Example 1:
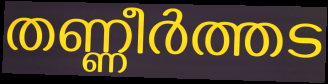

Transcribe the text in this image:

തണ്ണീർത്തട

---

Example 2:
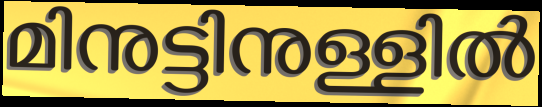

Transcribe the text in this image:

മിനുട്ടിനുള്ളിൽ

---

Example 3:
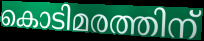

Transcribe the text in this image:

കൊടിമരത്തിന്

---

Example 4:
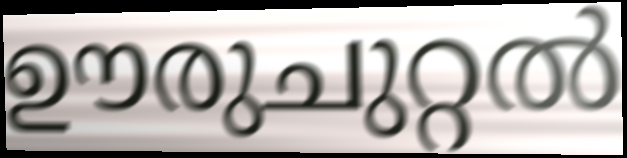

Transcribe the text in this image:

ഊരുചുറ്റൽ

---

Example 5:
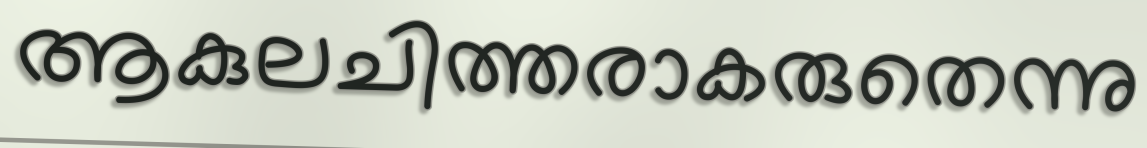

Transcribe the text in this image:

ആകുലചിത്തരാകരുതെന്നു